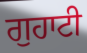
ਗੁਹਾਟੀ